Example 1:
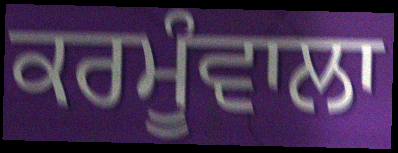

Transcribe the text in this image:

ਕਰਮੂੰਵਾਲਾ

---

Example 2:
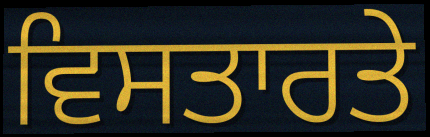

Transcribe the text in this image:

ਵਿਸਤਾਰਤੇ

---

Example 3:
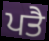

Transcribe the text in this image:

ਪਤੈ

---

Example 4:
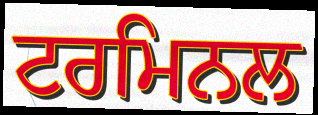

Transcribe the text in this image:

ਟਰਮਿਨਲ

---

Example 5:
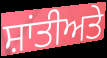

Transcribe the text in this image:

ਸ਼ਾਂਤੀਅਤੇ